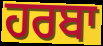
ਹਰਬਾ